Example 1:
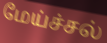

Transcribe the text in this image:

மேய்ச்சல்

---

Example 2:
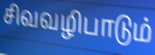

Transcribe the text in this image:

சிவவழிபாடும்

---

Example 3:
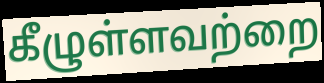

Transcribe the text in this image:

கீழுள்ளவற்றை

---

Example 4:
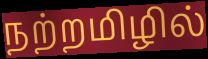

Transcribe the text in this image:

நற்றமிழில்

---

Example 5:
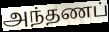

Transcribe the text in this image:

அந்தணப்